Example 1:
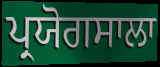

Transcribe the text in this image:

ਪ੍ਰਯੋਗਸਾਲਾ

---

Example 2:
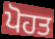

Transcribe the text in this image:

ਪੋਹਤ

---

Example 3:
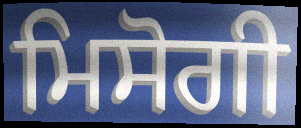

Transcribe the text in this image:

ਮਿਸੋਗੀ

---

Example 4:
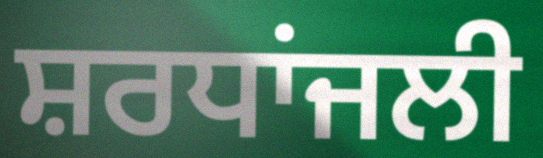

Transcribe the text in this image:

ਸ਼ਰਧਾਂਜਲੀ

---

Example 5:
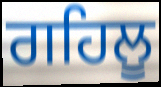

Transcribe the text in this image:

ਗਹਿਲੂ